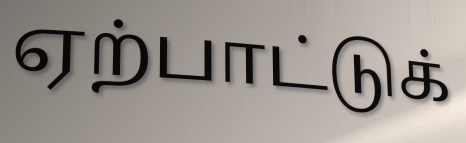
ஏற்பாட்டுக்